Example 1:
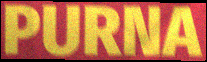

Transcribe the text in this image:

PURNA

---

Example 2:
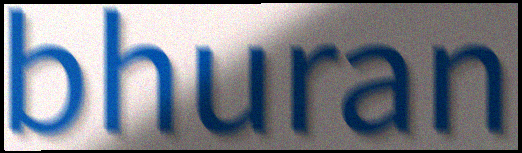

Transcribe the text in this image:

bhuran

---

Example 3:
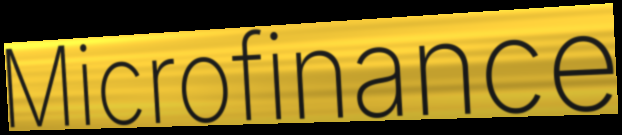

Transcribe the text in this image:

Microfinance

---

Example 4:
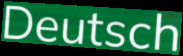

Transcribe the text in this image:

Deutsch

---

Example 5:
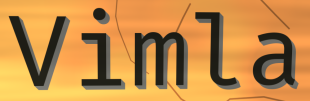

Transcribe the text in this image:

Vimla